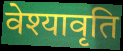
वेश्यावृति